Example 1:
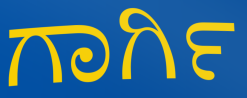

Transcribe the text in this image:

ಗಾರ್ಗಿ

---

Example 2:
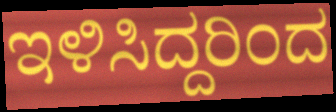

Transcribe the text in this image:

ಇಳಿಸಿದ್ದರಿಂದ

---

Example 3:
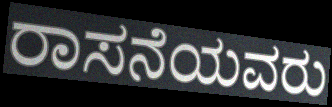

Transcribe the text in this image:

ರಾಸನೆಯವರು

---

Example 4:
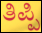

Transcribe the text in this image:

ತಿಪ್ಪಿ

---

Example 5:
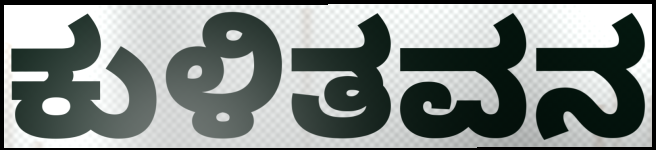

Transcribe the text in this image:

ಕುಳಿತವನ